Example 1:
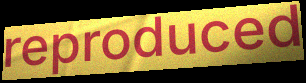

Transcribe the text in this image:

reproduced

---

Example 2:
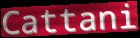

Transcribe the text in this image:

Cattani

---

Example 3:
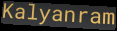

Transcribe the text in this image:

Kalyanram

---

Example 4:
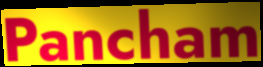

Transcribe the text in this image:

Pancham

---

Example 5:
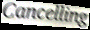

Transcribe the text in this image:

Cancelling